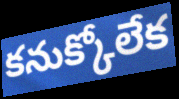
కనుక్కోలేక